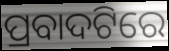
ପ୍ରବାଦଟିରେ